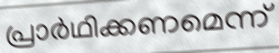
പ്രാർഥിക്കണമെന്ന്